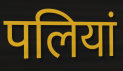
पलियां